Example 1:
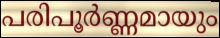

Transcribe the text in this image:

പരിപൂർണ്ണമായും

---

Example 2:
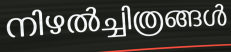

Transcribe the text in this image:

നിഴൽച്ചിത്രങ്ങൾ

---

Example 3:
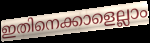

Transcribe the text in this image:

ഇതിനെക്കാളെല്ലാം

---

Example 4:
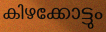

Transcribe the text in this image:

കിഴക്കോട്ടും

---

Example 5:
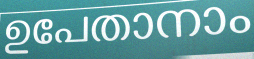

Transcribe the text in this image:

ഉപേതാനാം